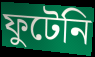
ফুটেনি